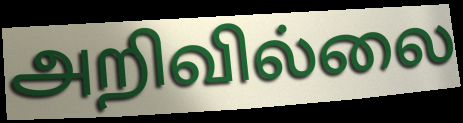
அறிவில்லை